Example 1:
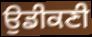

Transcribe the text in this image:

ਉਡੀਕਣੀ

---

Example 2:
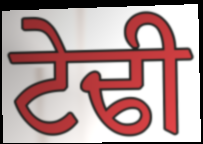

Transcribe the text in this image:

ਟੇਢੀ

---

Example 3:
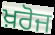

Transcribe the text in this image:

ਖ਼ਰੋਜ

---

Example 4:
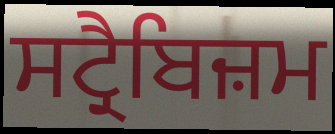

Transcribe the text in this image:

ਸਟ੍ਰੈਬਿਜ਼ਮ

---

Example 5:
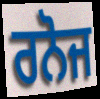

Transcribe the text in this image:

ਰਨੋਜ